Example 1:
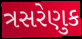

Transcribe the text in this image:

ત્રસરેણુક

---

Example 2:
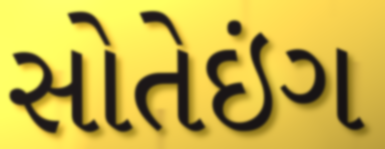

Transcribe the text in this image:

સોતેઇંગ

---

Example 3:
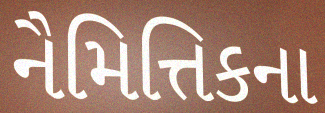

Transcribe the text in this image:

નૈમિત્તિકના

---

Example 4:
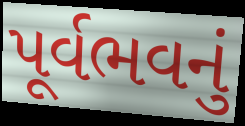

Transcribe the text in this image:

પૂર્વભવનું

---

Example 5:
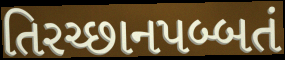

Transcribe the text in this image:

તિરચ્છાનપબ્બતં